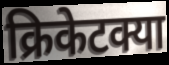
क्रिकेटक्या